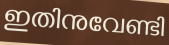
ഇതിനുവേണ്ടി